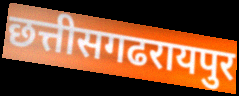
छत्तीसगढरायपुर